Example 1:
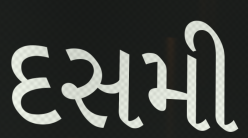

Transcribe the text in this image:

દસમી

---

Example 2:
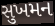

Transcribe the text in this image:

સુખમન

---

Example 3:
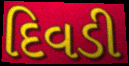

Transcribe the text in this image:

દિવડી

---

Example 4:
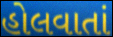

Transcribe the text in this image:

હોલવાતાં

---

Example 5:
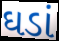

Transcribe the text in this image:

ઘડાં